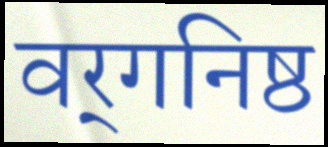
वर्गनिष्ठ